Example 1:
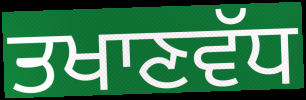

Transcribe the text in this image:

ਤਖਾਣਵੱਧ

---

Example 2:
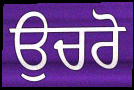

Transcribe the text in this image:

ਉਚਰੋ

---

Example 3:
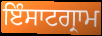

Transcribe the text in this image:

ਇੰਸਾਟਗ੍ਰਾਮ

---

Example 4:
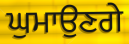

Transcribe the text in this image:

ਘੁਮਾਉਣਗੇ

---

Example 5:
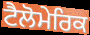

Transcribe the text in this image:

ਟੈਲੋਮੇਰਿਕ